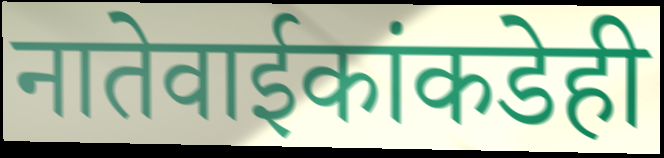
नातेवाईकांकडेही